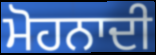
ਮੋਹਨਾਦੀ